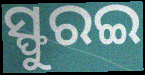
ସ୍ଫୁରଇ